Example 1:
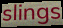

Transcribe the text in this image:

slings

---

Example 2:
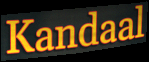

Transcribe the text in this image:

Kandaal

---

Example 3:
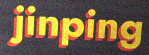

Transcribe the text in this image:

jinping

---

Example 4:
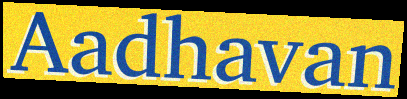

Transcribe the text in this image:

Aadhavan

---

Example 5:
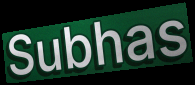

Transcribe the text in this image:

Subhas